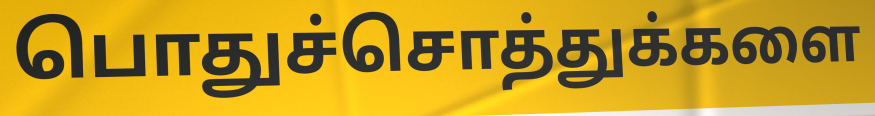
பொதுச்சொத்துக்களை